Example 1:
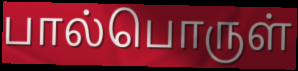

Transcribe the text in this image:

பால்பொருள்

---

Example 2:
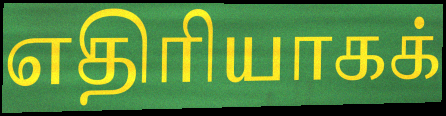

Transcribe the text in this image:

எதிரியாகக்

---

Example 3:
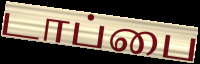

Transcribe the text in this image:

டாப்பை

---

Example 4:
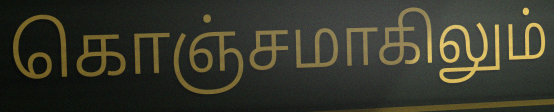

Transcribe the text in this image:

கொஞ்சமாகிலும்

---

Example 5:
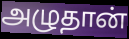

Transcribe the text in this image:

அழுதான்